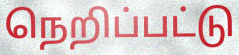
நெறிப்பட்டு